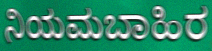
ನಿಯಮಬಾಹಿರ